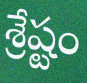
శ్రేష్టం